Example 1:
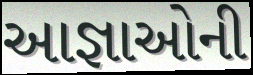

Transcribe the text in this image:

આજ્ઞાઓની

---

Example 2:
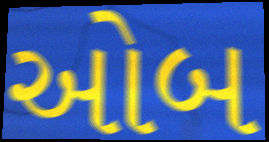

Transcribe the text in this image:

ઓબ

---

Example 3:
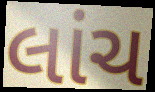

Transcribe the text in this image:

લાંચ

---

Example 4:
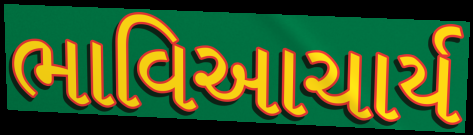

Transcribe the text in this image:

ભાવિઆચાર્ય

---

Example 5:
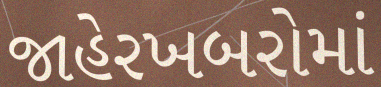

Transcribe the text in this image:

જાહેરખબરોમાં